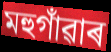
মহুগাঁৱাৰ